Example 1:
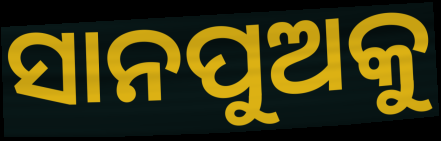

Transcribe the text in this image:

ସାନପୁଅକୁ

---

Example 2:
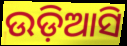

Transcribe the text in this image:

ଉଡ଼ିଆସି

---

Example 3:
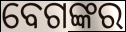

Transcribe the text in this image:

ବେଗଙ୍କର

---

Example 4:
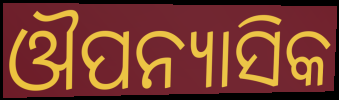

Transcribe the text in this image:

ଔପନ୍ୟାସିକ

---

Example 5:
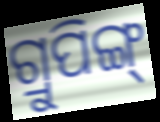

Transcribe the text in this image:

ଗ୍ରୁପିଙ୍ଗ୍